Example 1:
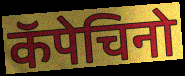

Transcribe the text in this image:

कॅपेचिनो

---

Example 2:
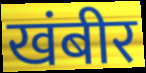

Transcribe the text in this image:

खंबीर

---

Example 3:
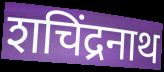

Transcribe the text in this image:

शचिंद्रनाथ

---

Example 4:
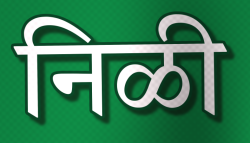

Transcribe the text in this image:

निळी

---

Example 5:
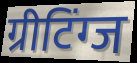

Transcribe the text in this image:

ग्रीटिंग्ज